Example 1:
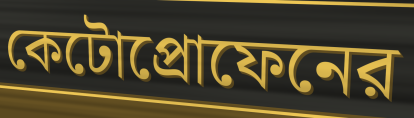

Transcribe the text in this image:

কেটোপ্রোফেনের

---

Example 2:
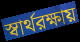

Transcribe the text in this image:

স্বার্থরক্ষায়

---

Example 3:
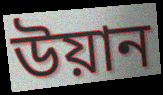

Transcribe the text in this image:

উয়ান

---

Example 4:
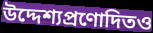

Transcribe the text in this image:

উদ্দেশ্যপ্রণোদিতও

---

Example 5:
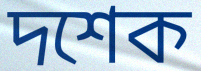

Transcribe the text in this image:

দশেক